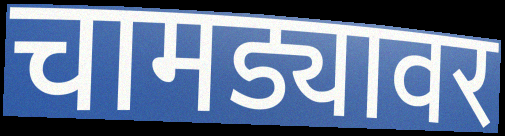
चामड्यावर